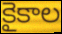
కైకాల